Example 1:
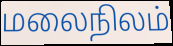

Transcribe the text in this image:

மலைநிலம்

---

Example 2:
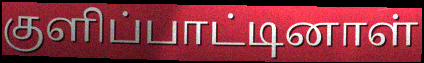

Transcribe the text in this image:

குளிப்பாட்டினாள்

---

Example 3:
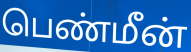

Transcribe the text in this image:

பெண்மீன்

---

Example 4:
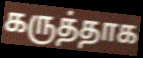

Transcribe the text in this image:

கருத்தாக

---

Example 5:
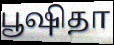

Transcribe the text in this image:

பூஷிதா